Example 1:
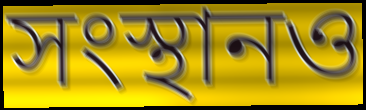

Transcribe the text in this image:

সংস্থানও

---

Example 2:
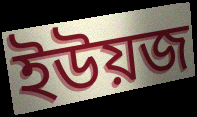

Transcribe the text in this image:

ইউয়জ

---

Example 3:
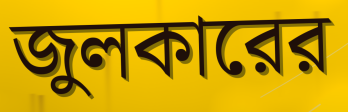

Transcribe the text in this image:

জুলকারের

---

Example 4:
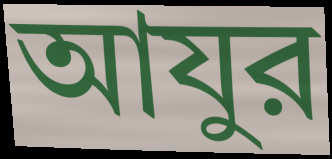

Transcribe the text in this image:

আযুর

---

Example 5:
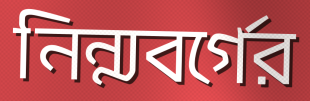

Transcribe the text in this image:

নিন্মবর্গের